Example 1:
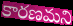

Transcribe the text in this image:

కారణమని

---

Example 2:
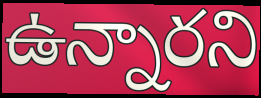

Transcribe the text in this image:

ఉన్నారని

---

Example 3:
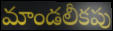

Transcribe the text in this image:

మాండలీకపు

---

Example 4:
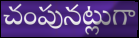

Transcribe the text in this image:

చంపునట్లుగా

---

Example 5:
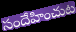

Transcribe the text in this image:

సందేహించుట